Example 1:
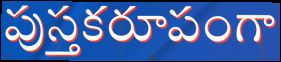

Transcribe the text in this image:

పుస్తకరూపంగా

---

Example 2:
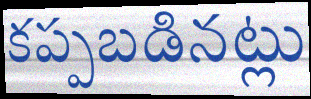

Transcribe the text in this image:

కప్పబడినట్లు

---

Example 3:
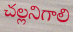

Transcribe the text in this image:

చల్లనిగాలి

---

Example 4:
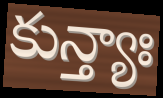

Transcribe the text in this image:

కున్త్యాః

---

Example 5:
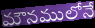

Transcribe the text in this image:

మౌనములోనే